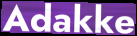
Adakke